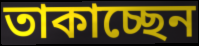
তাকাচ্ছেন